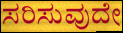
ಸರಿಸುವುದೇ